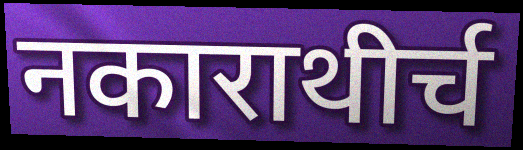
नकाराथीर्च